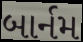
બાર્નમ